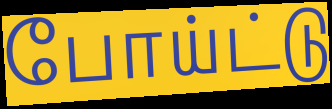
போய்ட்டு